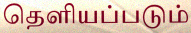
தெளியப்படும்